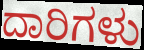
ದಾರಿಗಳು